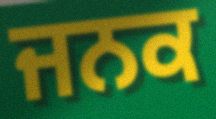
ਜਨਕ